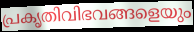
പ്രകൃതിവിഭവങ്ങളെയും